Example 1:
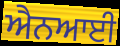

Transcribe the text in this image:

ਐਨਆਈ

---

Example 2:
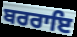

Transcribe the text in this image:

ਬਰਰਾਇ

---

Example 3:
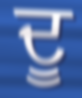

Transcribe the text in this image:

ਦੂ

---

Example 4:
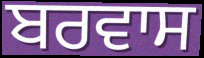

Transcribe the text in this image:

ਬਰਵਾਸ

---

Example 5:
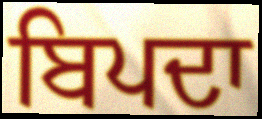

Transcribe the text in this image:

ਬਿਪਦਾ